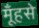
मूँहसे